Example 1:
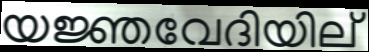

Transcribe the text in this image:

യജ്ഞവേദിയില്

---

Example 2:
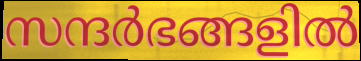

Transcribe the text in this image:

സന്ദർഭങ്ങളിൽ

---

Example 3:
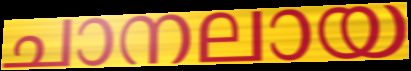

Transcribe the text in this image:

ചാനലായ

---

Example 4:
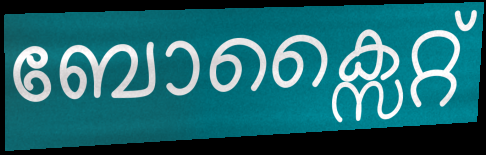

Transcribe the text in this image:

ബോക്സൈറ്റ്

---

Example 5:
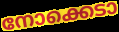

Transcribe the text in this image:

നോക്കെടാ